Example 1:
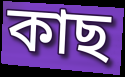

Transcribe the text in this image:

কাছ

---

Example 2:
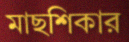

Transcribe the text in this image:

মাছশিকার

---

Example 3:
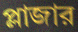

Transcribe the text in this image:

প্লাজার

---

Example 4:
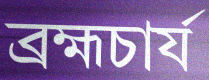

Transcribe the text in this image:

ব্রহ্মচার্য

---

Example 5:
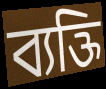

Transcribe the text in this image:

ব্যক্তি